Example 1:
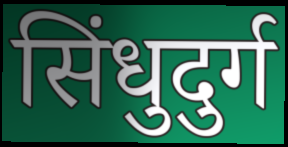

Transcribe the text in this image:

सिंधुदुर्ग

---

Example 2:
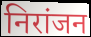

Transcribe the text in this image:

निरांजन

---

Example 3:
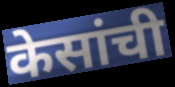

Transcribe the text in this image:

केसांची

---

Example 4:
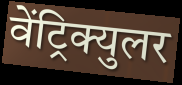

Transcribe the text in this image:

वेंट्रिक्युलर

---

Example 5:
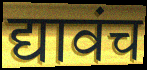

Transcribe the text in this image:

द्यावंच